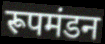
रूपमंडन